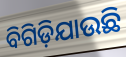
ବିଗିଡ଼ିଯାଉଛି